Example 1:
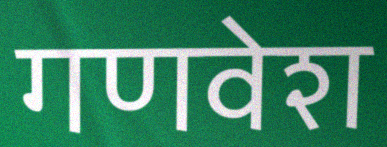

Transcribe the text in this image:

गणवेश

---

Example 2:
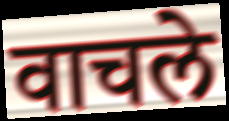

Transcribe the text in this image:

वाचले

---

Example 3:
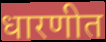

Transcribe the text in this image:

धारणीत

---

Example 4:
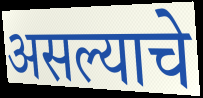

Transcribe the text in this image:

असल्‍याचे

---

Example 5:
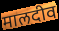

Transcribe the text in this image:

मालदीव